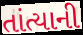
તાંત્યાની